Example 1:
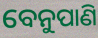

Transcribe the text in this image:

ବେନୁପାଣି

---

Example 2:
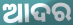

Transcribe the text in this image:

ଆଦର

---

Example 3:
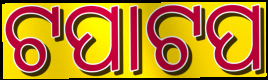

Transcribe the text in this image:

ଟପାଟପ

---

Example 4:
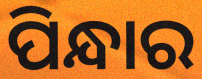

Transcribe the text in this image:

ପିନ୍ଧାର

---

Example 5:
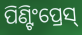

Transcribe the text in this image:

ପିଣ୍ଟିଂପ୍ରେସ୍